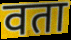
वता